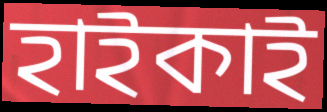
হাইকাই